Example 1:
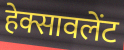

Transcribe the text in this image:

हेक्सावलेंट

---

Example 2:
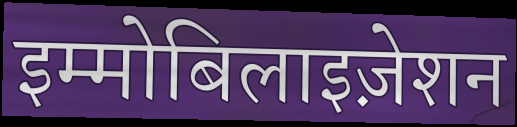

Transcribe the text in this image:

इम्मोबिलाइज़ेशन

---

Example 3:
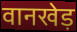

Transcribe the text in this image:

वानखेड़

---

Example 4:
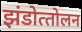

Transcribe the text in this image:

झंडोत्‍तोलन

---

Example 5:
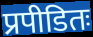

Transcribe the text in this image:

प्रपीडितः